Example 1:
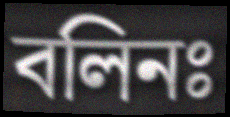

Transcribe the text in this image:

বলিনঃ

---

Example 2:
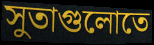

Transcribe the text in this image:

সুতাগুলোতে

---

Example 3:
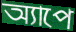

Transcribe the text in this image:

অ্যাপে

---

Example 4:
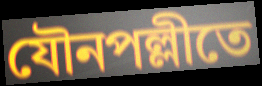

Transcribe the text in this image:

যৌনপল্লীতে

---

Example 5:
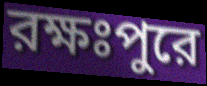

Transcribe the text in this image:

রক্ষঃপুরে